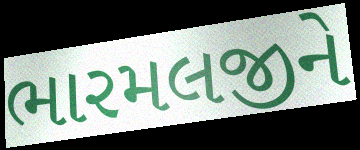
ભારમલજીને